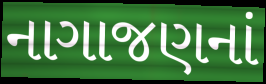
નાગાજણનાં